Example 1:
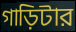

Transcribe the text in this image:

গাড়িটার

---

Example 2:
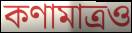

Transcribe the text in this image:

কণামাত্রও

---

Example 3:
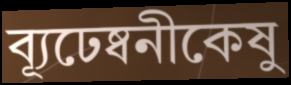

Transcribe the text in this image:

ব্যূঢেষ্বনীকেষু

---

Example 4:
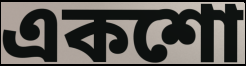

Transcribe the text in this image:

একশো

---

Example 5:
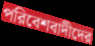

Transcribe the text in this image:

পরিবেশবাদীদের